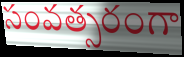
సంవత్సరంగా